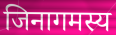
जिनागमस्य